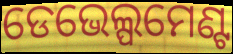
ଡେଭେଲ୍ପମେଣ୍ଟ